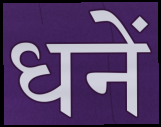
धनें